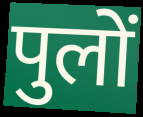
पुलों